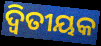
ଦ୍ୱିତୀୟକ